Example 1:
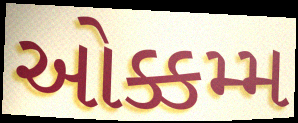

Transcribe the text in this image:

ઓક્કમ્મ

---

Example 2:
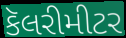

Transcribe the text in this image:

કૅલરીમીટર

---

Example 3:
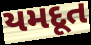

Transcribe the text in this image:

યમદૂત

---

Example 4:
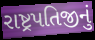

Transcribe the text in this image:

રાષ્ટ્રપતિજીનું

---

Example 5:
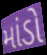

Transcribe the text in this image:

માંડો